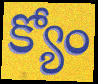
క్యోం